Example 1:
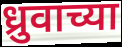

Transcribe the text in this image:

ध्रुवाच्या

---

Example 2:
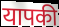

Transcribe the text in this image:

यापकी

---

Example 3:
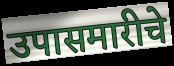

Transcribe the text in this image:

उपासमारीचे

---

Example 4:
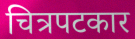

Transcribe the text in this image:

चित्रपटकार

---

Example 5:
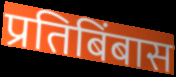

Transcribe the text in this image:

प्रतिबिंबास